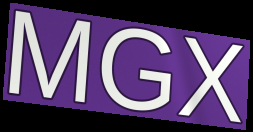
MGX